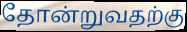
தோன்றுவதற்கு